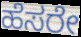
ಹೆಸರೇ